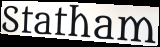
Statham